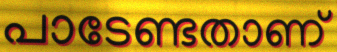
പാടേണ്ടതാണ്